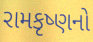
રામકૃષ્ણનો